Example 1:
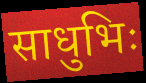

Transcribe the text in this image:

साधुभिः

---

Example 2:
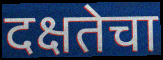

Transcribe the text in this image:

दक्षतेचा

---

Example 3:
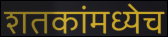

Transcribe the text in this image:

शतकांमध्येच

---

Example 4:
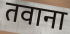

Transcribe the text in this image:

तवाना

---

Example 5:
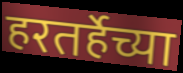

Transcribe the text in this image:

हरतर्हेच्या